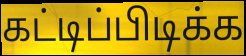
கட்டிப்பிடிக்க